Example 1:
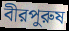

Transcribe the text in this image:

বীরপুরুষ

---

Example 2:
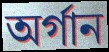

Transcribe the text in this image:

অর্গান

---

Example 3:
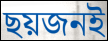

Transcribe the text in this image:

ছয়জনই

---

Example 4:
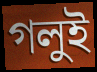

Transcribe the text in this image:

গলুই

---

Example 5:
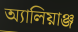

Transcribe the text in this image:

অ্যালিয়াঞ্জ